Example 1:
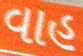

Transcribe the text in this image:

વાહ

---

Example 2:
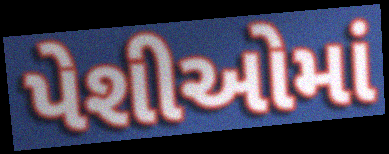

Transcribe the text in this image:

પેશીઓમાં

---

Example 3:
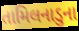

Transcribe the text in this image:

તામિલનાડુના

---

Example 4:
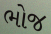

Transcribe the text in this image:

ભોજ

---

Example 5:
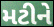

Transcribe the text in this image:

મટીને